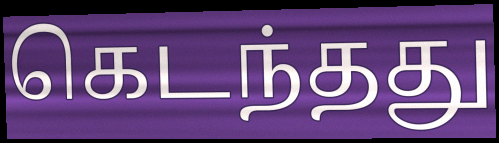
கெடந்தது